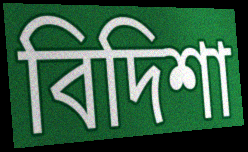
বিদিশা